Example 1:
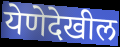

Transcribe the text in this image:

येणेदेखील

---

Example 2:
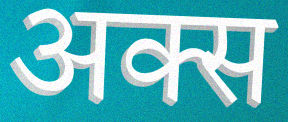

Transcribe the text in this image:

अक्स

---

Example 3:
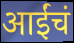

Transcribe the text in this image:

आईंचं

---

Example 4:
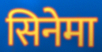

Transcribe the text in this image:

सिनेमा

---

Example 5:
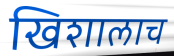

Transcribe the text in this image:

खिशालाच